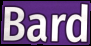
Bard